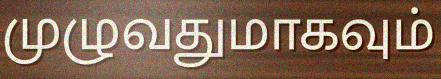
முழுவதுமாகவும்